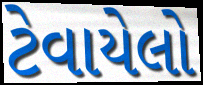
ટેવાયેલો